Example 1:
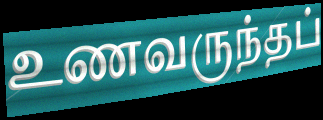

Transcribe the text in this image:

உணவருந்தப்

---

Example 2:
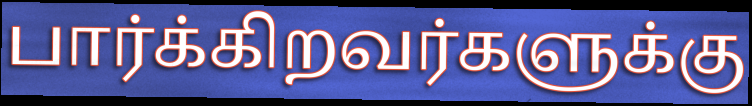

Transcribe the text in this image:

பார்க்கிறவர்களுக்கு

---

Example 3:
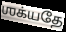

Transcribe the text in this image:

ஶக்யதே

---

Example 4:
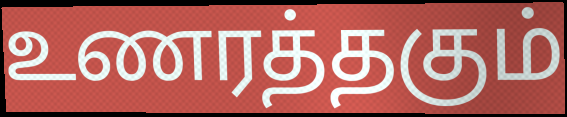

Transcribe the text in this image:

உணரத்தகும்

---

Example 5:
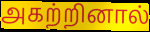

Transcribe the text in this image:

அகற்றினால்